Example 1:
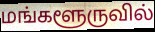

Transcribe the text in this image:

மங்களூருவில்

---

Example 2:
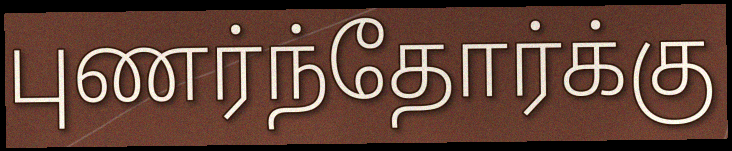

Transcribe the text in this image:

புணர்ந்தோர்க்கு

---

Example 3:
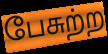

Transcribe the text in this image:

பேசுற்ற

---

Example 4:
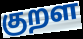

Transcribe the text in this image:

குறள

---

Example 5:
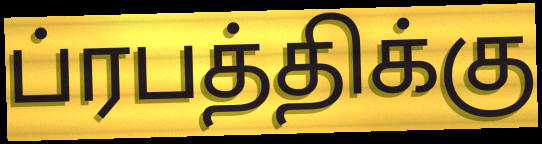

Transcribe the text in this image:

ப்ரபத்திக்கு